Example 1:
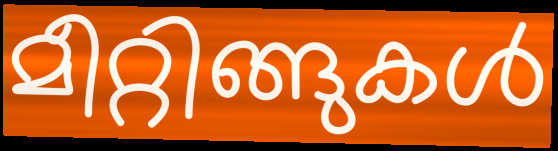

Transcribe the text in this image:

മീറ്റിങ്ങുകൾ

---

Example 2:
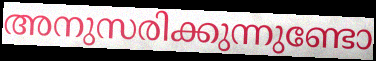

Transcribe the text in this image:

അനുസരിക്കുന്നുണ്ടോ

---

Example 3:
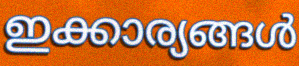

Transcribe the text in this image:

ഇക്കാര്യങ്ങൾ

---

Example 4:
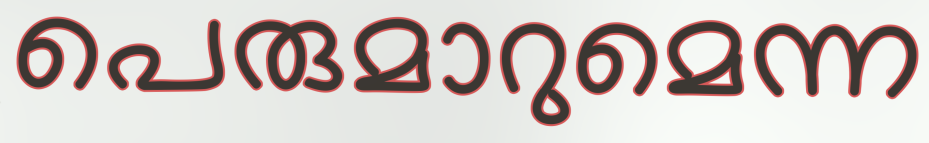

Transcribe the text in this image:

പെരുമാറുമെന്ന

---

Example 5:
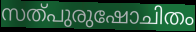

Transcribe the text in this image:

സത്പുരുഷോചിതം